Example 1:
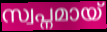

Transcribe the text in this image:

സ്വപ്നമായ്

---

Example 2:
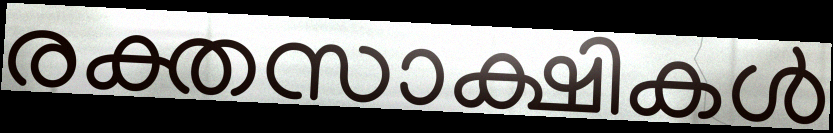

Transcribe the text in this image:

രക്തസാക്ഷികൾ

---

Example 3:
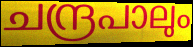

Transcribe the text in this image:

ചന്ദ്രപാലും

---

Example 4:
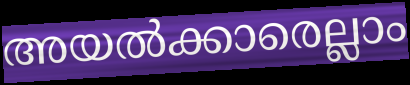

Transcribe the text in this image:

അയൽക്കാരെല്ലാം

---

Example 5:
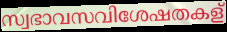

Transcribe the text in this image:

സ്വഭാവസവിശേഷതകള്